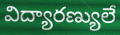
విద్యారణ్యులే